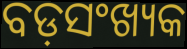
ବଡ଼ସଂଖ୍ୟକ